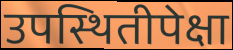
उपस्थितीपेक्षा